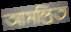
আমন্ত্রিত